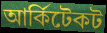
আর্কিটেকট